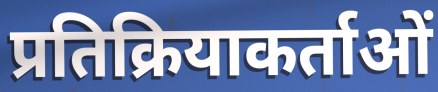
प्रतिक्रियाकर्ताओं